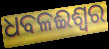
ଧବଳଈଶ୍ବର